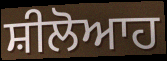
ਸ਼ੀਲੋਆਹ